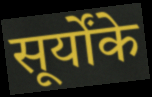
सूर्योंके